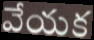
వేయక